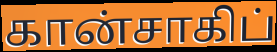
கான்சாகிப்